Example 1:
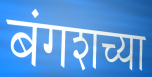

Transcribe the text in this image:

बंगशच्या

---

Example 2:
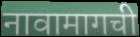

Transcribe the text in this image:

नावामागची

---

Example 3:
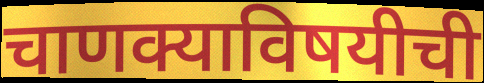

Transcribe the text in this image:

चाणक्याविषयीची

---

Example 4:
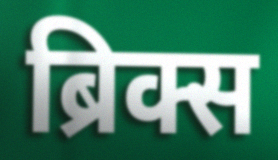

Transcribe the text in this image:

ब्रिक्स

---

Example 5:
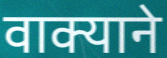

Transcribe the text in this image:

वाक्याने